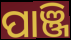
ପାଞ୍ଜି